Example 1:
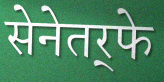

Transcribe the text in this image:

सेनेतर्फे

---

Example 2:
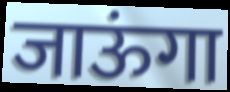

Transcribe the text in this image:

जाऊंगा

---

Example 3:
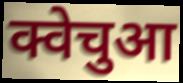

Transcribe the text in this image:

क्वेचुआ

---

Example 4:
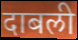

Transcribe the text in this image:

दाबली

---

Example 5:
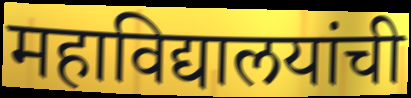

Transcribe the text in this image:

महाविद्यालयांची